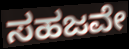
ಸಹಜವೇ